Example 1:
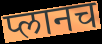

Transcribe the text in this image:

प्लानच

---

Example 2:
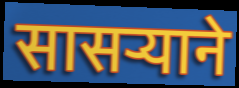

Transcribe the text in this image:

सासऱ्याने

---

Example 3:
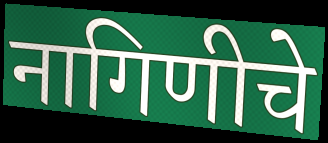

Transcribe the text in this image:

नागिणीचे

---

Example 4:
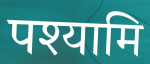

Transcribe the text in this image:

पश्यामि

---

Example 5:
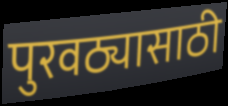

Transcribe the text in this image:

पुरवठ्यासाठी